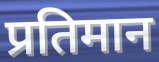
प्रतिमान